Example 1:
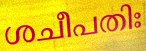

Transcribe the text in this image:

ശചീപതിഃ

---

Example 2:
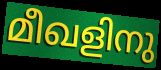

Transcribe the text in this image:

മീഖളിനു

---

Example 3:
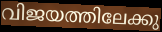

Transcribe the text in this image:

വിജയത്തിലേക്കു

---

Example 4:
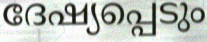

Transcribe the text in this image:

ദേഷ്യപ്പെടും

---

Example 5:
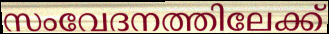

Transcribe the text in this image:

സംവേദനത്തിലേക്ക്